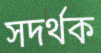
সদৰ্থক